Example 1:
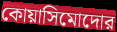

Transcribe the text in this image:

কোয়াসিমোদোর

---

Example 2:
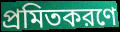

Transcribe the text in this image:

প্রমিতকরণে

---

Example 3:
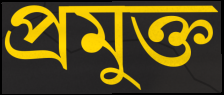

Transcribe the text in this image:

প্রমুক্ত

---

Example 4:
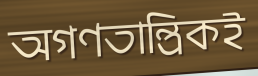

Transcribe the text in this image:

অগণতান্ত্রিকই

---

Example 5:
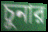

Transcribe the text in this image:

চুনার